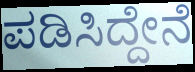
ಪಡಿಸಿದ್ದೇನೆ